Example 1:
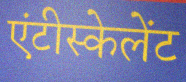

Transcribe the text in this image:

एंटीस्केलेंट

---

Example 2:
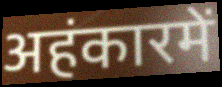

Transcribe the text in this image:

अहंकारमें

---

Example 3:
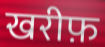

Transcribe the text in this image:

खरीफ़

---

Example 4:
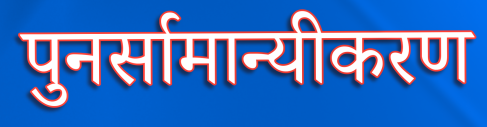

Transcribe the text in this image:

पुनर्सामान्यीकरण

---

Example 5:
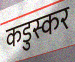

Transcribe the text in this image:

कडुस्कर